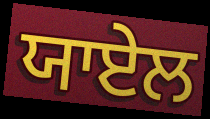
ਯਾਏਲ